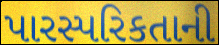
પારસ્પરિકતાની